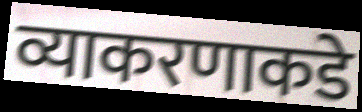
व्याकरणाकडे